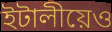
ইটালীয়েও